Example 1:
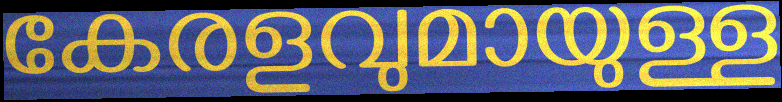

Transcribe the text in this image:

കേരളവുമായുള്ള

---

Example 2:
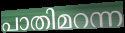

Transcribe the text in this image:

പാതിമറന്ന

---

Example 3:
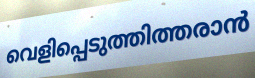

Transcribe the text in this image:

വെളിപ്പെടുത്തിത്തരാൻ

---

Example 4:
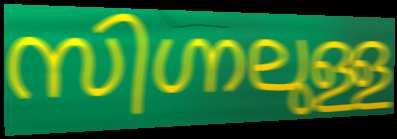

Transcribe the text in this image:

സിഗ്നലുള്ള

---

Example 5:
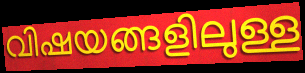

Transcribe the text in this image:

വിഷയങ്ങളിലുള്ള